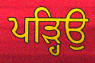
ਪੜ੍ਹਿਉ